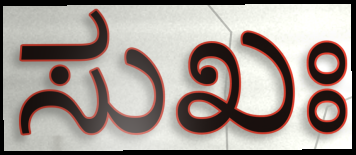
ಸುಖಃ